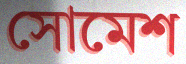
সোমেশ